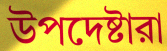
উপদেষ্টারা